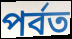
পর্বত